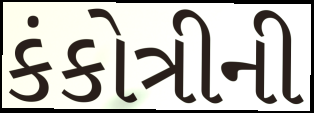
કંકોત્રીની